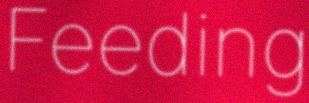
Feeding